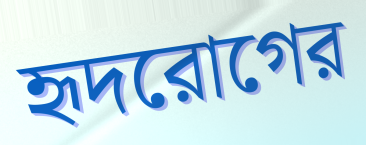
হৃদরোগের